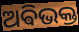
ଅଵିଭକ୍ତ